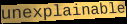
unexplainable